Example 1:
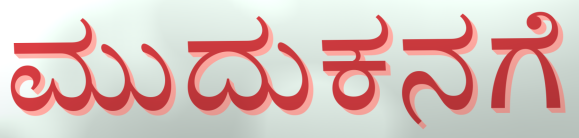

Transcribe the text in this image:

ಮುದುಕನಗೆ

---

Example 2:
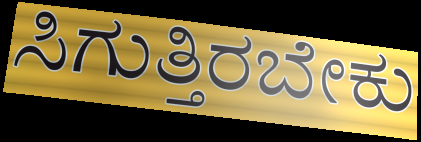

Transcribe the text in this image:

ಸಿಗುತ್ತಿರಬೇಕು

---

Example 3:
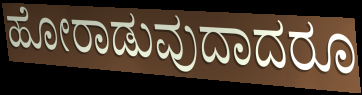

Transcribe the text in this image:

ಹೋರಾಡುವುದಾದರೂ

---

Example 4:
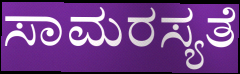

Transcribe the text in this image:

ಸಾಮರಸ್ಯತೆ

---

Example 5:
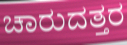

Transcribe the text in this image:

ಚಾರುದತ್ತರ